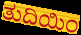
ತುದಿಯಿಂ